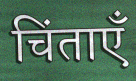
चिंताएँ